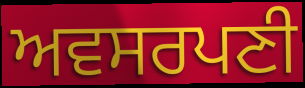
ਅਵਸਰਪਣੀ